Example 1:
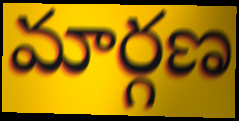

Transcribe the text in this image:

మార్గణ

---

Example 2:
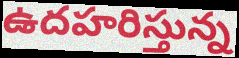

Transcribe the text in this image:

ఉదహరిస్తున్న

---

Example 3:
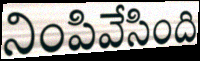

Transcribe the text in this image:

నింపివేసింది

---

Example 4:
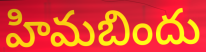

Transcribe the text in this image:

హిమబిందు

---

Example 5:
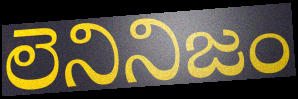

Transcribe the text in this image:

లెనినిజం